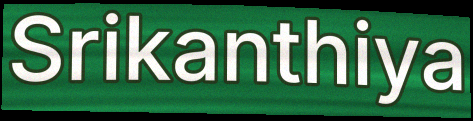
Srikanthiya